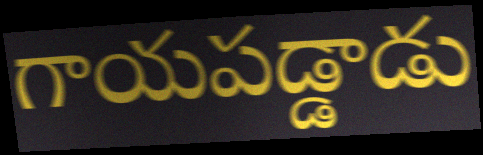
గాయపడ్డాడు